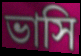
ভাসি